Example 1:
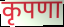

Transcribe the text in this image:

कृपणा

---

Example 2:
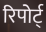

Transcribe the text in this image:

रिपोर्ट्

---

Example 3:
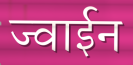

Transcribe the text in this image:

ज्वाईन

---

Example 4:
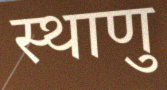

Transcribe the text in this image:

स्थाणु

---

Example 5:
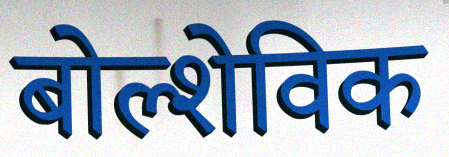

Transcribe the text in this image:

बोल्शेविक